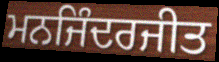
ਮਨਜਿੰਦਰਜੀਤ